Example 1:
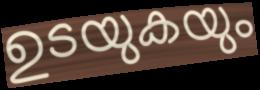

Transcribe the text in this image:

ഉടയുകയും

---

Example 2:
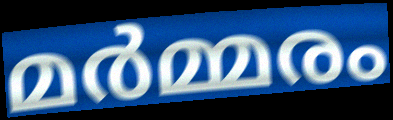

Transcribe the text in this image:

മർമ്മരം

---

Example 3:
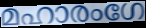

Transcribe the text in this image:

മഹാരംഗേ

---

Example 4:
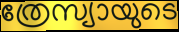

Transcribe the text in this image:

ത്രേസ്യായുടെ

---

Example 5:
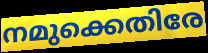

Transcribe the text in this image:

നമുക്കെതിരേ